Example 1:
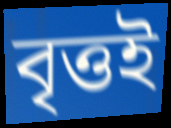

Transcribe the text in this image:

বৃত্তই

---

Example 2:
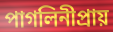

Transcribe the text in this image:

পাগলিনীপ্রায়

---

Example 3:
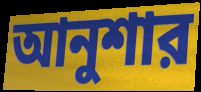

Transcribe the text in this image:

আনুশার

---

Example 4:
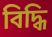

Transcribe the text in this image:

বিদ্ধি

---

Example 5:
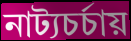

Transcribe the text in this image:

নাট্যচর্চায়